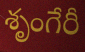
శృంగేరీ